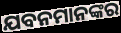
ଯବନମାନଙ୍କର